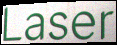
Laser